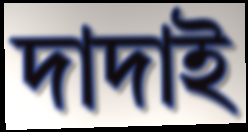
দাদাই